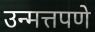
उन्मत्तपणे